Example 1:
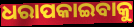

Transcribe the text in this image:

ଧରାପକାଇବାକୁ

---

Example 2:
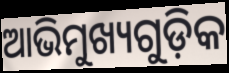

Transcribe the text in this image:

ଆଭିମୁଖ୍ୟଗୁଡ଼ିକ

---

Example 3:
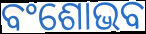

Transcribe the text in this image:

ବଂଶୋଭବ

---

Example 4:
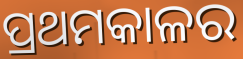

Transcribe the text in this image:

ପ୍ରଥମକାଳର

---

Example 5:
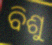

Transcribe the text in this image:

ବିଶୁ